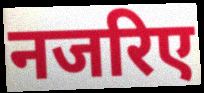
नजरिए